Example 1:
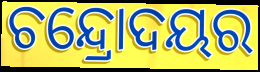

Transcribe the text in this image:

ଚନ୍ଦ୍ରୋଦୟର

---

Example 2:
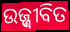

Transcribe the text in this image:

ଉଜ୍ଜ୍ୱୀବିତ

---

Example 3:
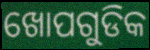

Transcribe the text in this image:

ଖୋପଗୁଡିକ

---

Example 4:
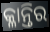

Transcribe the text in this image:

କ୍ଳାନ୍ତିର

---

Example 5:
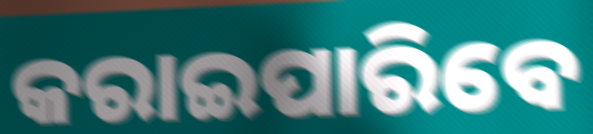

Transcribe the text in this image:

କରାଇପାରିବେ